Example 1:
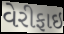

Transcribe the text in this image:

વેરીફાઇ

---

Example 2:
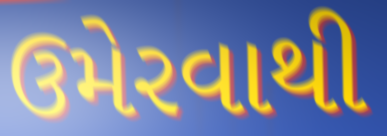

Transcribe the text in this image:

ઉમેરવાથી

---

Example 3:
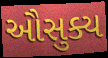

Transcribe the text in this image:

ઔસુક્ય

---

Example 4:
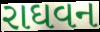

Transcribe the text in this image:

રાઘવન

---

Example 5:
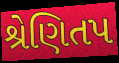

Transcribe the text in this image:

શ્રેણિતપ